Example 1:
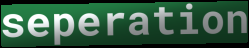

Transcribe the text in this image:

seperation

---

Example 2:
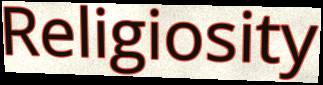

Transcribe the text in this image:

Religiosity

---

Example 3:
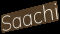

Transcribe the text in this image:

Saachi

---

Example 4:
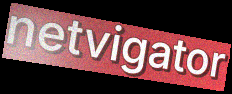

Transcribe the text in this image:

netvigator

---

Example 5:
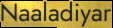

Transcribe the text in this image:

Naaladiyar